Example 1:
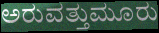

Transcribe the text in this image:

ಅರುವತ್ತುಮೂರು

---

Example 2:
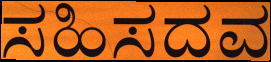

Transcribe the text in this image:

ಸಹಿಸದವ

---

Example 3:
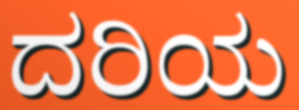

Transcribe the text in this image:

ದರಿಯ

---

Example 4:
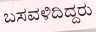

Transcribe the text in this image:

ಬಸವಳಿದಿದ್ದರು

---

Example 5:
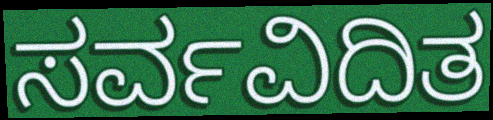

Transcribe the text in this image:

ಸರ್ವವಿದಿತ